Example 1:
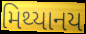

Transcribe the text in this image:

મિથ્યાનય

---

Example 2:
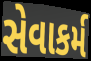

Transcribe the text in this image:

સેવાકર્મ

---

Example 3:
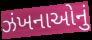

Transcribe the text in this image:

ઝંખનાઓનું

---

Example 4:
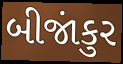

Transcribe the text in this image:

બીજાંકુર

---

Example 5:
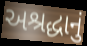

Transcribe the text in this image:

અશ્રદ્ધાનું